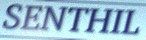
SENTHIL